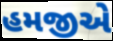
હમજીએ